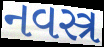
નવસ્ત્ર